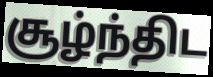
சூழ்ந்திட